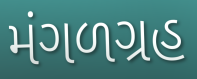
મંગળગ્રહ